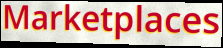
Marketplaces